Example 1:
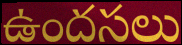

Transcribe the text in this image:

ఉందసలు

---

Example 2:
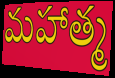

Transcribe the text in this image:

మహాత్మ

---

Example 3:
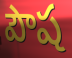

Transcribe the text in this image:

పౌష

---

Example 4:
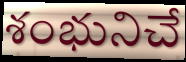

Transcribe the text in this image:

శంభునిచే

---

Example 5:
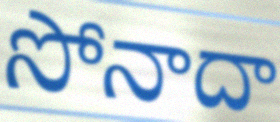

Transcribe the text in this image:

సోనాదా